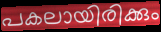
പകലായിരിക്കും